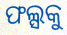
ଫଲ୍ସକୁ